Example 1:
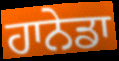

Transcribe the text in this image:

ਹਾਨੇਡਾ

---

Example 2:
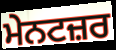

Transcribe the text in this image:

ਮੇਨਟਜ਼ਰ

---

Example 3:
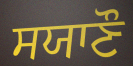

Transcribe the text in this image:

ਸਯਾਣੌ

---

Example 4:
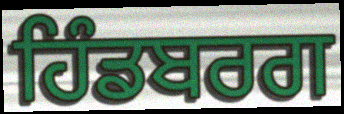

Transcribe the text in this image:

ਹਿੰਡਬਰਗ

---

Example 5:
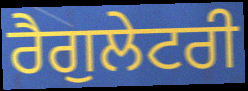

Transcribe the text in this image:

ਰੈਗੁਲੇਟਰੀ